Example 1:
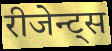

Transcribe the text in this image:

रीजेन्ट्स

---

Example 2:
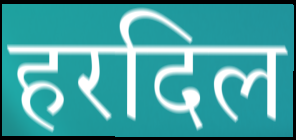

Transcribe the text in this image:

हरदिल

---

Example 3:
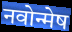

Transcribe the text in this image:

नवोन्‍मेष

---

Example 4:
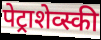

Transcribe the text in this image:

पेट्राशेव्स्की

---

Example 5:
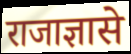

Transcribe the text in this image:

राजाज्ञासे